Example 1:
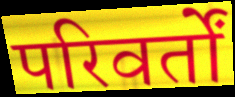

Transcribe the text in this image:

परिवर्तों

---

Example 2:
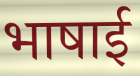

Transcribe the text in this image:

भाषाई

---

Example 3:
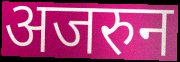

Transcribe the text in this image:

अजरुन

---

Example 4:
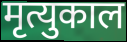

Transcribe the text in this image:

मृत्युकाल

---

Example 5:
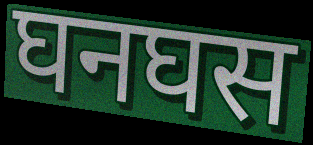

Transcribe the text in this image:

घनघस